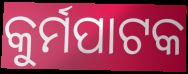
କୁର୍ମପାଟକ